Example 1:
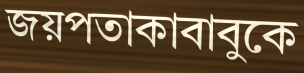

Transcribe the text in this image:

জয়পতাকাবাবুকে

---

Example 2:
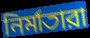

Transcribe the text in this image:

নির্মাতারা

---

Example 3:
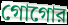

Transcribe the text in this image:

গোগোর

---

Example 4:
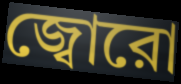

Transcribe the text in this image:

জ্বোরো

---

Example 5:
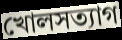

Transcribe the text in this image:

খোলসত্যাগ